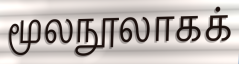
மூலநூலாகக்